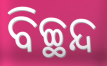
ବିଚ୍ଛନ୍ଦ